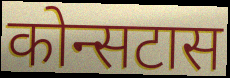
कोन्सटास